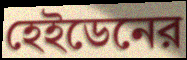
হেইডেনের